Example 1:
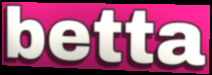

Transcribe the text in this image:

betta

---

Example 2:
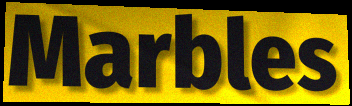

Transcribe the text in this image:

Marbles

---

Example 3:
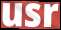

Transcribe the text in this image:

usr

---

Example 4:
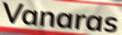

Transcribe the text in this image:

Vanaras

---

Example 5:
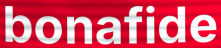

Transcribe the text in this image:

bonafide